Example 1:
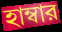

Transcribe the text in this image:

হাম্বার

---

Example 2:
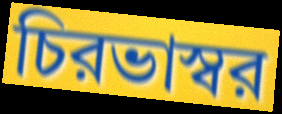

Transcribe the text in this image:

চিরভাস্বর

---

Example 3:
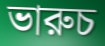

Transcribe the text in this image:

ভারুচ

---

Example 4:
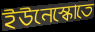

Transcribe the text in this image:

ইউনেস্কোতে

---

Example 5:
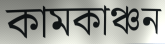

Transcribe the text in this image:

কামকাঞ্চন